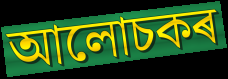
আলোচকৰ